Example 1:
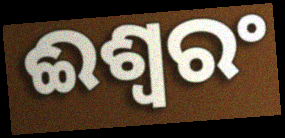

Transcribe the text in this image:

ଈଶ୍ଵରଂ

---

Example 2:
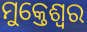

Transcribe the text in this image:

ମୁକ୍ତେଶ୍ଵର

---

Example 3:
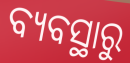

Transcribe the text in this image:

ବ୍ୟବସ୍ଥାରୁ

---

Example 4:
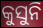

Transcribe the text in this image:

କୁସୁନି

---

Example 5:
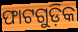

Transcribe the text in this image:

ଫାଟଗୁଡ଼ିକ